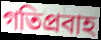
গতিপ্রবাহ